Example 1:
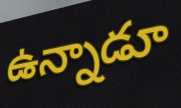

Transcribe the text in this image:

ఉన్నాడూ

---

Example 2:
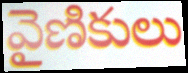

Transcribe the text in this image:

వైణికులు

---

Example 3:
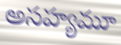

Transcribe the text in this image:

అసహ్యమూ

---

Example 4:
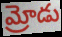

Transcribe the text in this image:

మ్రోడు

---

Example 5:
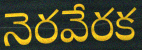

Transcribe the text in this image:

నెరవేరక